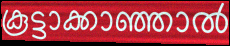
കൂട്ടാക്കാഞ്ഞാൽ